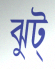
ঝুট্